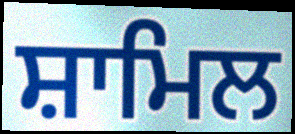
ਸ਼ਾਮਿਲ